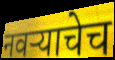
नवऱ्याचेच